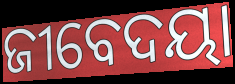
ଜୀବେଦୟା